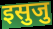
इसुजु